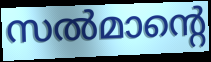
സൽമാന്റെ